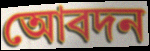
আেবদন